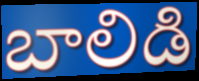
బాలిడి